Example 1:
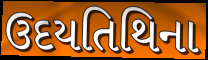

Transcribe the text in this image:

ઉદયતિથિના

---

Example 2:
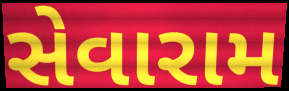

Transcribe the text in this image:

સેવારામ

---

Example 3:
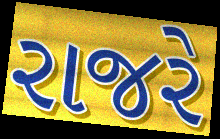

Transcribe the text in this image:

રાજરે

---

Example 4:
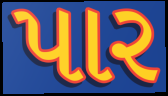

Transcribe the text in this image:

પાર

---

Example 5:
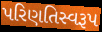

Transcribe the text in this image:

પરિણતિસ્વરૂપ